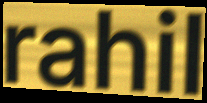
rahil